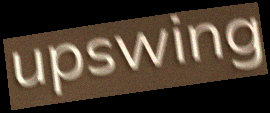
upswing